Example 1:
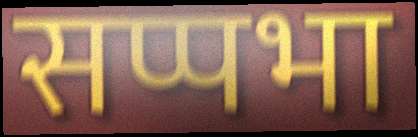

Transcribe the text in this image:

सप्पभा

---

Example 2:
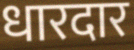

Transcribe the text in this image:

धारदार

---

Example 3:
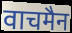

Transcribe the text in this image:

वाचमैन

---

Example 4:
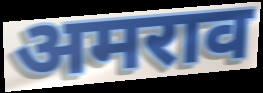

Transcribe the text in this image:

अमराव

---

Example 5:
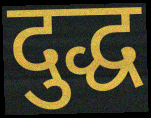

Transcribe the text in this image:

दुद्ध